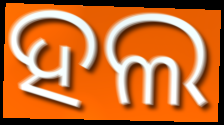
ହଲ